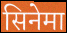
सिनेमा